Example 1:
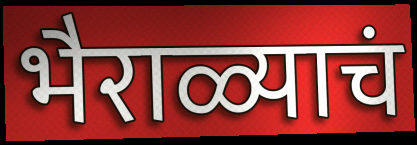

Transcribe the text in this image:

भैराळ्याचं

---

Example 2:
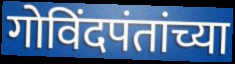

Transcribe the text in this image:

गोविंदपंतांच्या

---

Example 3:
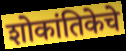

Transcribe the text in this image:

शोकांतिकेचे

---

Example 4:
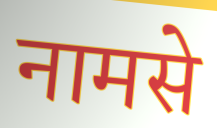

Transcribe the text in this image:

नामसे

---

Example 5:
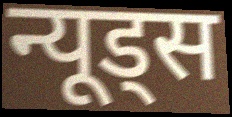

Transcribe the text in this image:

न्यूड्स